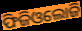
ଫିଜିଓଲୋଜି